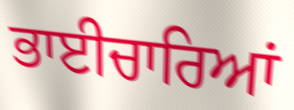
ਭਾਈਚਾਰਿਆਂ